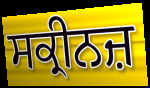
ਸਕ੍ਰੀਨਜ਼